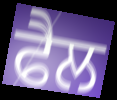
ਫੈਲ